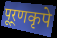
पूर्णकृपे